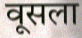
वूसला